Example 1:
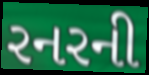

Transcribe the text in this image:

રનરની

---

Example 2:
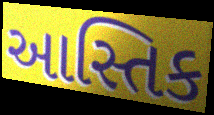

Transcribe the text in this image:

આસ્તિક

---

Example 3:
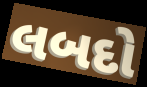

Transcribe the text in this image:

લબદો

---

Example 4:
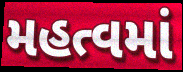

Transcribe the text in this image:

મહત્વમાં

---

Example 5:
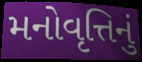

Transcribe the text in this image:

મનોવૃત્તિનું